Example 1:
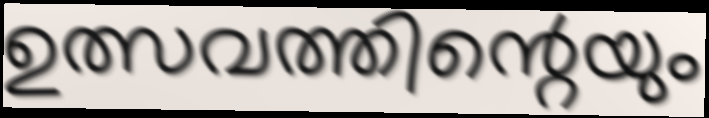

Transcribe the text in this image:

ഉത്സവത്തിന്റെയും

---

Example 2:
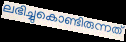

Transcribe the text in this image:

ലഭിച്ചുകൊണ്ടിരുന്നത്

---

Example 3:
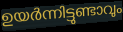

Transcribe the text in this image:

ഉയർന്നിട്ടുണ്ടാവും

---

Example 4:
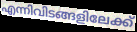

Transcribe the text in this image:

എന്നിവിടങ്ങളിലേക്ക്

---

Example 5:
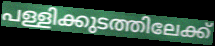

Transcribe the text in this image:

പള്ളിക്കുടത്തിലേക്ക്